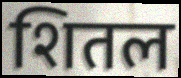
शितल